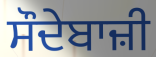
ਸੌਦੇਬਾਜ਼ੀ